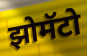
झोमॅटो